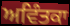
ਅਵਿੰਤਕਾ